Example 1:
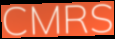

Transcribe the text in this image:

CMRS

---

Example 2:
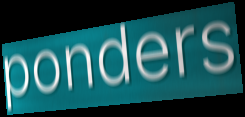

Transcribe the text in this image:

ponders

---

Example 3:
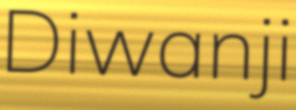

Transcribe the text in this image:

Diwanji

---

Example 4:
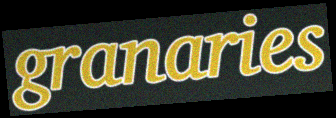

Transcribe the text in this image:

granaries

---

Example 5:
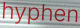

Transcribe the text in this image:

hyphen